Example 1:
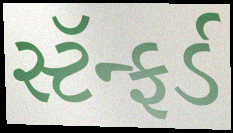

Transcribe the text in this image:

સ્ટૅન્ફર્ડ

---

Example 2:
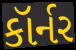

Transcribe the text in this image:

કૉર્નર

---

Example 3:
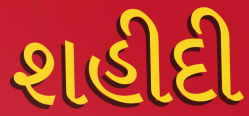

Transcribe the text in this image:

શહીદી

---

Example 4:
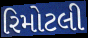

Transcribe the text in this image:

રિમોટલી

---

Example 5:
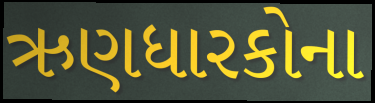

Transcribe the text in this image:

ઋણધારકોના